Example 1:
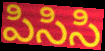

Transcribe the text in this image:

పిసిసి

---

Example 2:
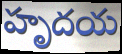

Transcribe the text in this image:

హృదయ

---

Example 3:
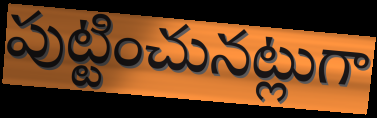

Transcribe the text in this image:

పుట్టించునట్లుగా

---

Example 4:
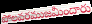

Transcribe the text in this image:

పోలవరముజమీందారు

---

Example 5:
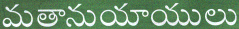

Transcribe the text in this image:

మతానుయాయులు